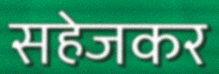
सहेजकर